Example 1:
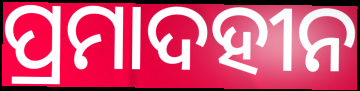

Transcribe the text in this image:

ପ୍ରମାଦହୀନ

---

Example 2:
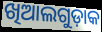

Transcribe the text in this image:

ଖିଆଲଗୁଡ଼ାକ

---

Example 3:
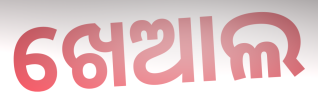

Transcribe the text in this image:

ଖେଆଲ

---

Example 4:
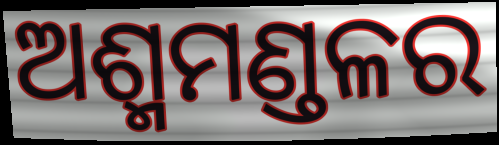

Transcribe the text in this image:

ଅଶ୍ମମଣ୍ଡଳର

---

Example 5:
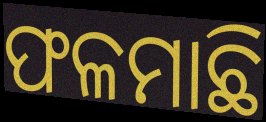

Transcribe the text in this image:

ଫଳମାଛି